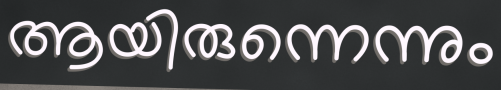
ആയിരുന്നെന്നും